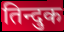
तिन्दुक